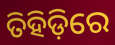
ତିହିଡ଼ିରେ